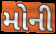
મોની